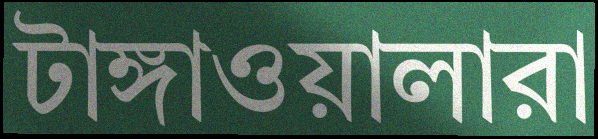
টাঙ্গাওয়ালারা